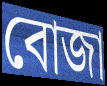
বোজা